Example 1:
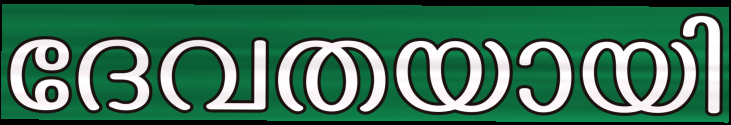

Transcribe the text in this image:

ദേവതയായി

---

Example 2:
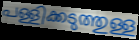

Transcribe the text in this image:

പള്ളിക്കടുത്തുള്ള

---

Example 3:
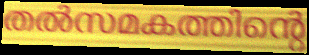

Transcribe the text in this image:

തൽസമകത്തിന്റെ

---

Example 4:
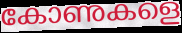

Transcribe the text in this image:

കോണുകളെ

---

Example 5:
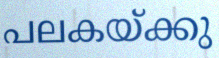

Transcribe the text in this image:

പലകയ്ക്കു